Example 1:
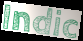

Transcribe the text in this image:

Indic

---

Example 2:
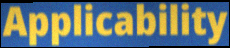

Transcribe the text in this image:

Applicability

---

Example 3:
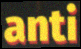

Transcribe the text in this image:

anti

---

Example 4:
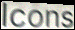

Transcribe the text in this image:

Icons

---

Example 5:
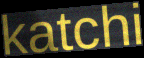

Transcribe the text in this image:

katchi